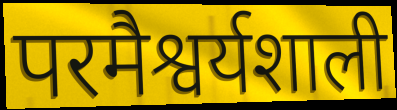
परमैश्वर्यशाली